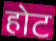
होट